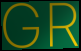
GR